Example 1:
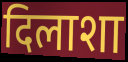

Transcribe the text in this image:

दिलाशा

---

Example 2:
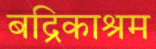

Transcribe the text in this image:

बद्रिकाश्रम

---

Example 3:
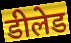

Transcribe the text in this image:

डीलेड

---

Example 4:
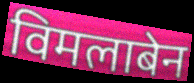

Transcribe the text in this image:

विमलाबेन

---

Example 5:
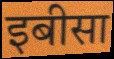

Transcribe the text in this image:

इबीसा